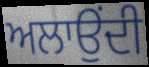
ਅਲਾਉਂਦੀ